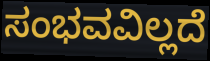
ಸಂಭವವಿಲ್ಲದೆ